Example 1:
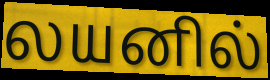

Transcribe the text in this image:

லயனில்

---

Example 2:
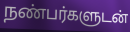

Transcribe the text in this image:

நண்பர்களுடன்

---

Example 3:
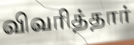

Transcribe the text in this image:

விவரித்தார்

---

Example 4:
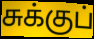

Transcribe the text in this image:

சுக்குப்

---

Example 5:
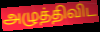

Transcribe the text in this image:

அழுத்திவிட